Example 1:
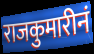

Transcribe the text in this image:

राजकुमारीनं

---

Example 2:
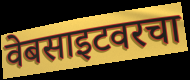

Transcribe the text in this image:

वेबसाइटवरचा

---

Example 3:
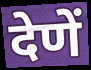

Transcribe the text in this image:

देणें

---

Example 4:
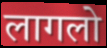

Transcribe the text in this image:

लागलो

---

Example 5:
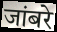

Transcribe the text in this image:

जांबरे